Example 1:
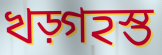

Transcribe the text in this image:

খড়্গহস্ত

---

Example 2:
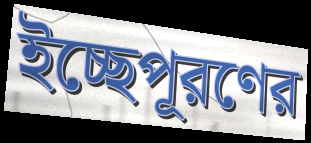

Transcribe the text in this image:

ইচ্ছেপূরণের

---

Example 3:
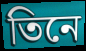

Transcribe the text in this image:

তিনে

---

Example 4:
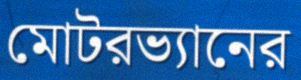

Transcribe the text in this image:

মোটরভ্যানের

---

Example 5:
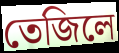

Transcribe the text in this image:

তেজিলে